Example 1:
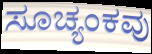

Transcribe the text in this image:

ಸೂಚ್ಯಂಕವು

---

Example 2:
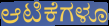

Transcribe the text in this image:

ಆಟಿಕೆಗಳೂ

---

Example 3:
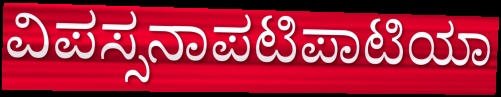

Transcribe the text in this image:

ವಿಪಸ್ಸನಾಪಟಿಪಾಟಿಯಾ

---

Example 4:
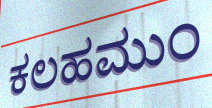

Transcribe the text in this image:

ಕಲಹಮುಂ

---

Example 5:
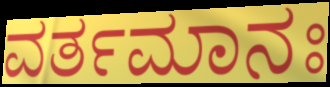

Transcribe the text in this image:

ವರ್ತಮಾನಃ